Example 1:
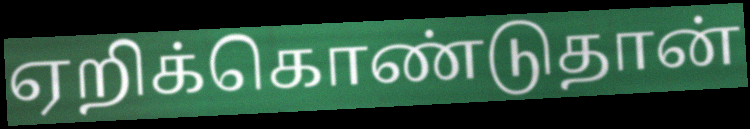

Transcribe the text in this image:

ஏறிக்கொண்டுதான்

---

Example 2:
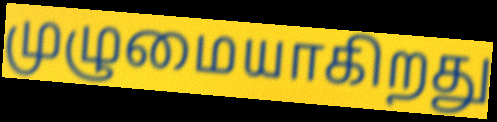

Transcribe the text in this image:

முழுமையாகிறது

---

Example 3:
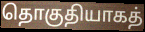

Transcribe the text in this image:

தொகுதியாகத்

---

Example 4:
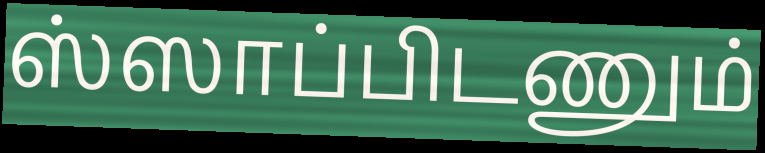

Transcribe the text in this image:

ஸ்ஸாப்பிடணும்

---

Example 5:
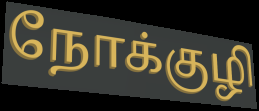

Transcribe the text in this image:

நோக்குழி